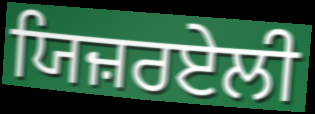
ਯਿਜ਼ਰਏਲੀ